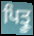
ਪਿਤ੍ਰੂ